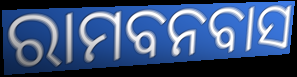
ରାମବନବାସ